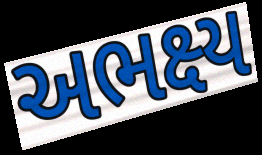
અભક્ષ્ય